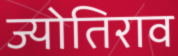
ज्योतिराव